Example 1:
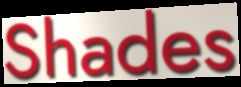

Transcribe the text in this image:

Shades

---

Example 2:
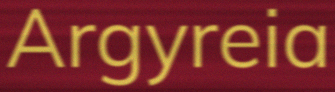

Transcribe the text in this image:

Argyreia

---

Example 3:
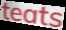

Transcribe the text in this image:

teats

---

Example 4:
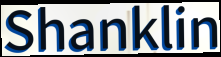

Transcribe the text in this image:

Shanklin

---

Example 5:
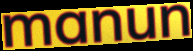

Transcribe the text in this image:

manun